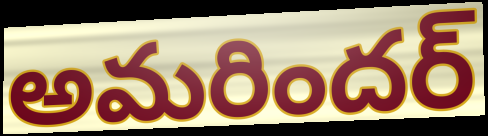
అమరిందర్